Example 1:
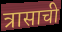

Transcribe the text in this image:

त्रासाची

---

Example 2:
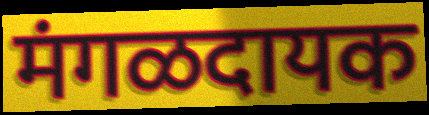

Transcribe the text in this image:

मंगळदायक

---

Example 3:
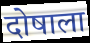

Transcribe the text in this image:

दोषाला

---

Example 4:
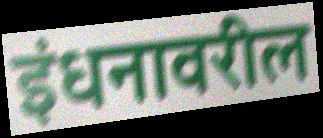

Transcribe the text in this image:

इंधनावरील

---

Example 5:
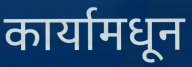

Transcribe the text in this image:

कार्यामधून